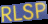
RLSP